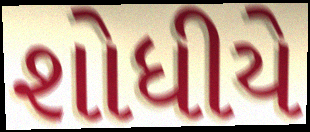
શોધીયે